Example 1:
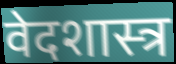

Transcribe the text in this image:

वेदशास्त्र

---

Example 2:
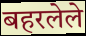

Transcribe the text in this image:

बहरलेले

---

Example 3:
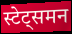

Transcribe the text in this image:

स्टेट्समन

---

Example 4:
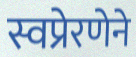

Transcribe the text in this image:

स्वप्रेरणेने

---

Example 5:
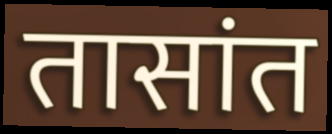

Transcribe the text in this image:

तासांत